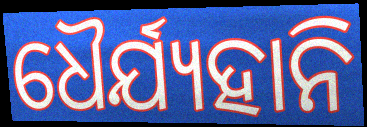
ଧୈର୍ଯ୍ୟହାନି